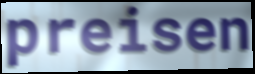
preisen